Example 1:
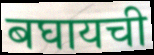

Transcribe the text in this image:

बघायची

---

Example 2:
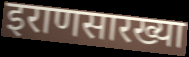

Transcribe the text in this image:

इराणसारख्या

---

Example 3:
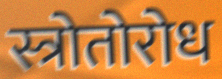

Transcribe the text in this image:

स्त्रोतोरोध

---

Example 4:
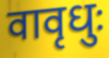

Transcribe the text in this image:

वावृधुः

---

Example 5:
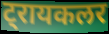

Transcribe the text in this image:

ट्रायकलर